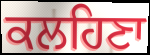
ਕਲਹਿਣਾ